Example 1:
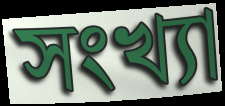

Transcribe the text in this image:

সংখ্যা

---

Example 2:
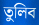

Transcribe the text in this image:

তুলিব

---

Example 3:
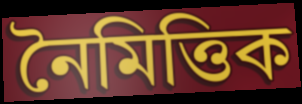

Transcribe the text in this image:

নৈমিত্তিক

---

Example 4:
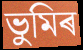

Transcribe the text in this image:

ভুমিৰ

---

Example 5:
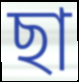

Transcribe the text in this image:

ছা